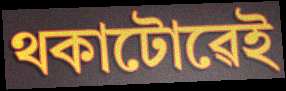
থকাটোৱেই